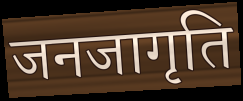
जनजागृति